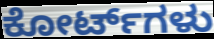
ಕೋರ್ಟ್‌ಗಳು